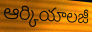
ఆర్కియాలజీ